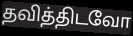
தவித்திடவோ